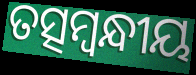
ତତ୍ସମ୍ବନ୍ଧୀୟ